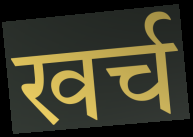
खर्च